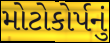
મોટોકોર્પનું